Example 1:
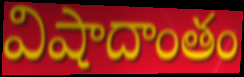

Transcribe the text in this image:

విషాదాంతం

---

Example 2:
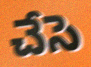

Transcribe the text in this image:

చేసె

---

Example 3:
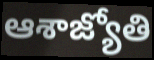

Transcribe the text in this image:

ఆశాజ్యోతి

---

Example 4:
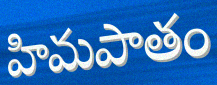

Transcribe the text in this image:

హిమపాతం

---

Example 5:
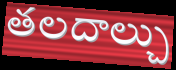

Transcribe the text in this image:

తలదాల్చు